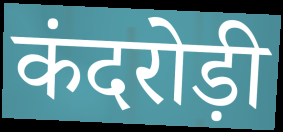
कंदरोड़ी